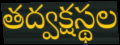
తద్వక్షస్థల